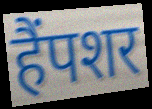
हैंपशर